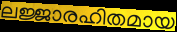
ലജ്ജാരഹിതമായ